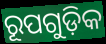
ରୂପଗୁଡ଼ିକ